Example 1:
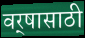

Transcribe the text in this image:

वर्षासाठी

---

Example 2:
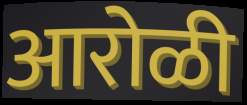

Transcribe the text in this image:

आरोळी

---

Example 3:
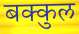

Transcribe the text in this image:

बक्कुल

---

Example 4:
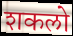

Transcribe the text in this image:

शकलो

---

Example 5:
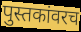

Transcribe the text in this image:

पुस्तकांवरच